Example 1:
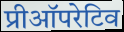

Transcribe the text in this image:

प्रीऑपरेटिव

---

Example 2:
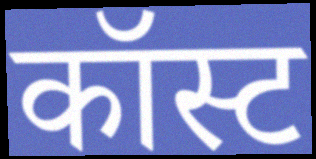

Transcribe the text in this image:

कॉस्ट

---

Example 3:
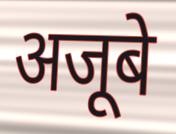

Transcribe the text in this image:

अजूबे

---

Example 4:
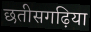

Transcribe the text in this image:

छतीसगढ़िया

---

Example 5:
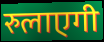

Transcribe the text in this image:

रुलाएगी